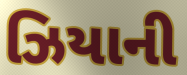
ઝિયાની